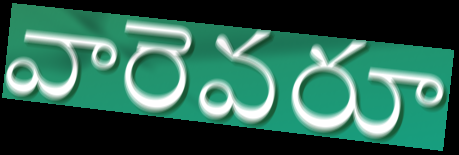
వారెవరూ